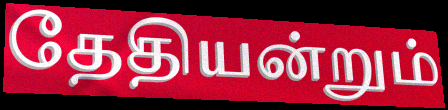
தேதியன்றும்